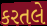
કરતલે